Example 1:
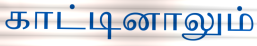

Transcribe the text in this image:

காட்டினாலும்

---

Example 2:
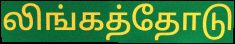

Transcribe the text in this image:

லிங்கத்தோடு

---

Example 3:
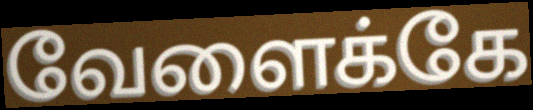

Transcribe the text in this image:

வேளைக்கே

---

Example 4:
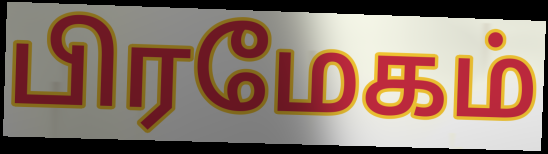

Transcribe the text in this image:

பிரமேகம்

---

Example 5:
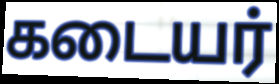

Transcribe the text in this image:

கடையர்